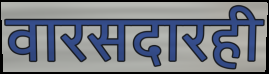
वारसदारही